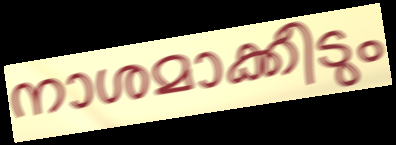
നാശമാക്കീടും